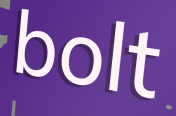
bolt